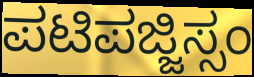
ಪಟಿಪಜ್ಜಿಸ್ಸಂ